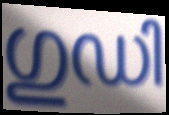
ഗുഡി